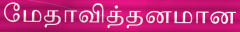
மேதாவித்தனமான